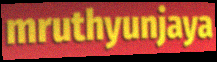
mruthyunjaya